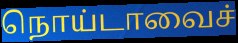
நொய்டாவைச்